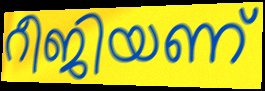
റീജിയണ്